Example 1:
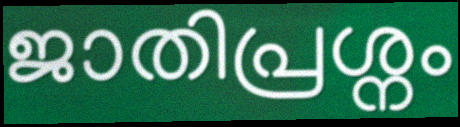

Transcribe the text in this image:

ജാതിപ്രശ്നം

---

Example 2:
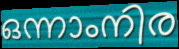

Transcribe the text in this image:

ഒന്നാംനിര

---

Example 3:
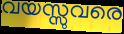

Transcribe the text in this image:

വയസ്സുവരെ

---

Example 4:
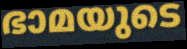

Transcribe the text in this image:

ഭാമയുടെ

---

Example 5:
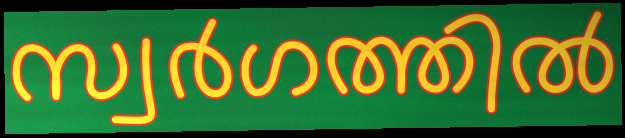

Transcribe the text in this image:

സ്വർഗത്തിൽ